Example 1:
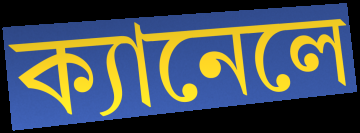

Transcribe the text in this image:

ক্যানেলে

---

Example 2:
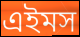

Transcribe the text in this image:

এইমস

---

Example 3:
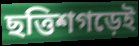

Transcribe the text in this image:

ছত্তিশগড়েই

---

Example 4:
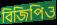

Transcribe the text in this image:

বিজিপিও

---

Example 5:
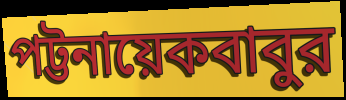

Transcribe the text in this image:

পট্টনায়েকবাবুর